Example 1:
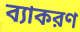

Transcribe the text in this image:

ব্যাকরণ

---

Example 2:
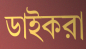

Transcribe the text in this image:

ডাইকরা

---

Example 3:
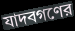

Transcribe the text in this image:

যাদবগণের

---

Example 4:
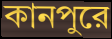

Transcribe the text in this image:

কানপুরে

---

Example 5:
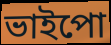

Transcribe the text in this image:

ভাইপো